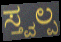
ಸ್ತ್ವಲ್ಪ